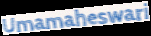
Umamaheswari